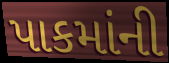
પાકમાંની